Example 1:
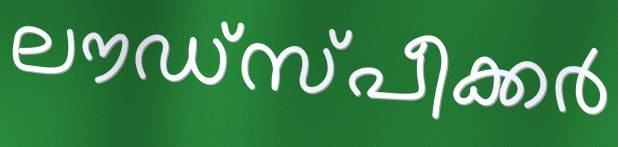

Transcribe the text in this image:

ലൗഡ്സ്പീക്കർ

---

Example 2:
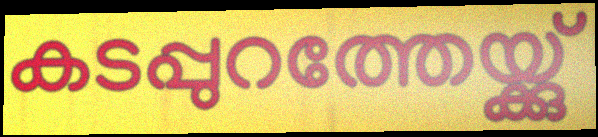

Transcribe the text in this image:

കടപ്പുറത്തേയ്ക്കു്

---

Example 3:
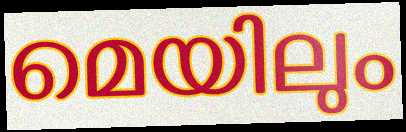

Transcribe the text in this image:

മെയിലും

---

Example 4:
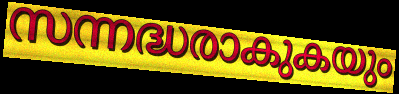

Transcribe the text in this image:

സന്നദ്ധരാകുകയും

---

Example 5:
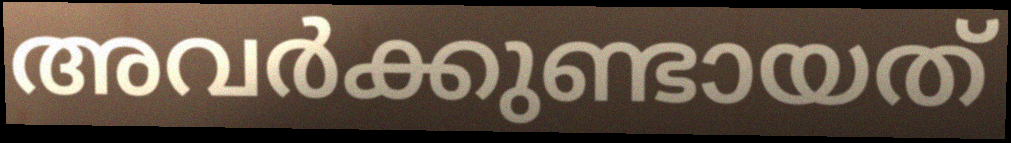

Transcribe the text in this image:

അവർക്കുണ്ടായത്